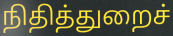
நிதித்துறைச்